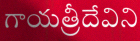
గాయత్రీదేవిని